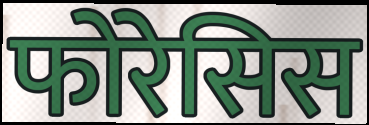
फोरेसिस